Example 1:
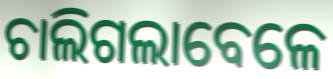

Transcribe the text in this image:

ଚାଲିଗଲାବେଳେ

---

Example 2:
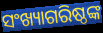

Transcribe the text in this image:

ସଂଖ୍ୟାଗରିଷ୍ଠଙ୍କ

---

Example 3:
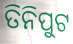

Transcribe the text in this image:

ତିନିପୁଟ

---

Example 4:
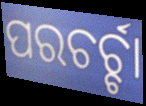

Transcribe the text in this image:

ପରଚର୍ଚ୍ଚା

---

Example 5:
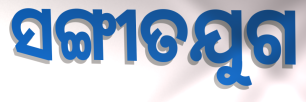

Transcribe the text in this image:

ସଙ୍ଗୀତଯୁଗ